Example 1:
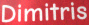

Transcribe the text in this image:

Dimitris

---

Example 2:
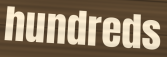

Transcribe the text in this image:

hundreds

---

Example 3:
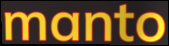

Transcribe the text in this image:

manto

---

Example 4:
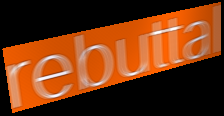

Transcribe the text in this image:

rebuttal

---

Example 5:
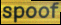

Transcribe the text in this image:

spoof